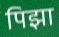
पिझा